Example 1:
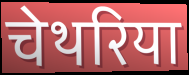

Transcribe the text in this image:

चेथरिया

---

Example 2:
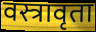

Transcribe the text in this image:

वस्त्रावृता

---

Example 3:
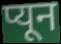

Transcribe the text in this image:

प्यून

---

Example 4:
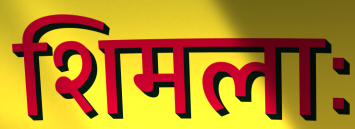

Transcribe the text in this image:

शिमलाः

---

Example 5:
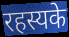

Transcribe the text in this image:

रहस्यके